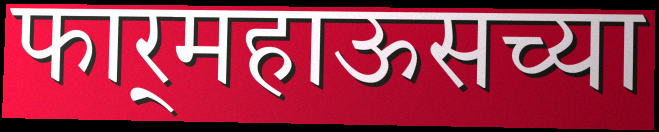
फार्महाऊसच्या